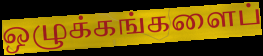
ஒழுக்கங்களைப்